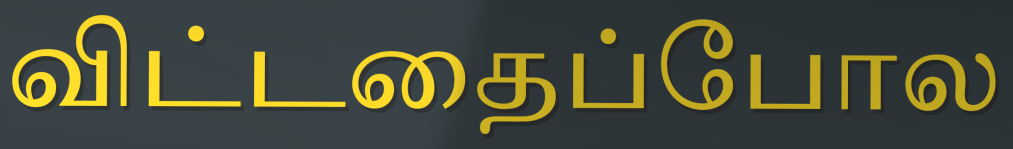
விட்டதைப்போல